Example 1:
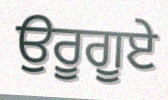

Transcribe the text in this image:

ਉਰੂਗੂਏ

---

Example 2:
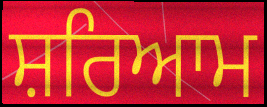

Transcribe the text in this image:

ਸ਼ਰਿਆਮ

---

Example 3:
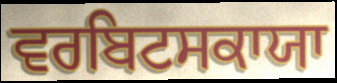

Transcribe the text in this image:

ਵਰਬਿਟਸਕਾਯਾ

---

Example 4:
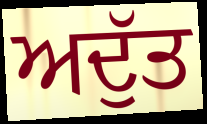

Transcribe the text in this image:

ਅਦੁੱਤ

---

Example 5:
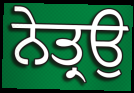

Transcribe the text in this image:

ਨੇਤ੍ਰਉ